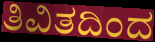
ತಿವಿತದಿಂದ